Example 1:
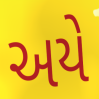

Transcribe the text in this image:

અયે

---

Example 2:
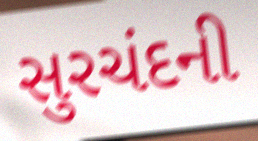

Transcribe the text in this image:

સુરચંદની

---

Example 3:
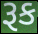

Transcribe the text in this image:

રૂક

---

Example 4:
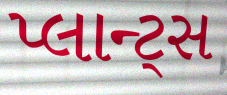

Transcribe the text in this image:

પ્લાન્ટ્સ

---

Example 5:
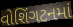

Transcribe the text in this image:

વોશિંગટનમાં